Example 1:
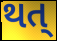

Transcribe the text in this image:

થત્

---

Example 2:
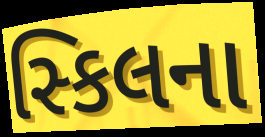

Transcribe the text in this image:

સ્કિલના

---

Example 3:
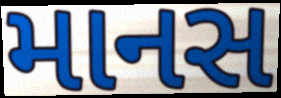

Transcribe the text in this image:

માનસ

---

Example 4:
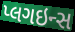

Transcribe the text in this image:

પ્લગઇન્સ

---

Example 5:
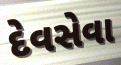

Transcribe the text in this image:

દેવસેવા